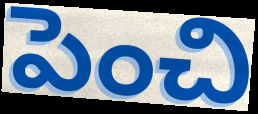
పెంచి